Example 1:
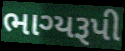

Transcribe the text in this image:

ભાગ્યરૂપી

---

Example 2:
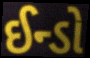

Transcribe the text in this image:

ઈન્ડો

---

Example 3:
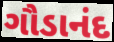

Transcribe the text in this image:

ગૌડાનંદ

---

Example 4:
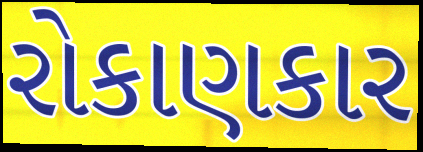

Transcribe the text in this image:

રોકાણકાર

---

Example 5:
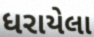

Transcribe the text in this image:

ધરાયેલા